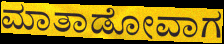
ಮಾತಾಡೋವಾಗ